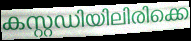
കസ്റ്റഡിയിലിരിക്കെ